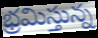
భ్రమిస్తున్న